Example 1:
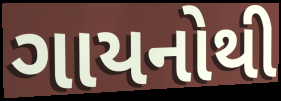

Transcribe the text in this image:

ગાયનોથી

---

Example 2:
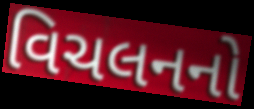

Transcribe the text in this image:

વિચલનનો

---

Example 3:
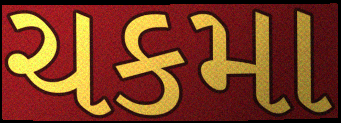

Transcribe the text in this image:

ચકમા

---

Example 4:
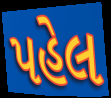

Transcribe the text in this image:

પહેલ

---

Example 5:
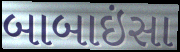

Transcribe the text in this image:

બાબાઇંસા